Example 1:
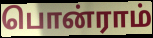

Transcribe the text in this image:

பொன்ராம்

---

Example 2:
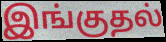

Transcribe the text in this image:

இங்குதல்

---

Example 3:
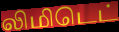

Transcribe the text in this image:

லிமிடெட்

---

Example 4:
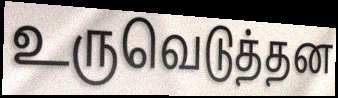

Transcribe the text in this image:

உருவெடுத்தன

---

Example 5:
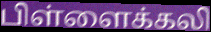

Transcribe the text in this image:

பிள்ளைக்கலி